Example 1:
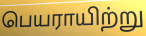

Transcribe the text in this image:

பெயராயிற்று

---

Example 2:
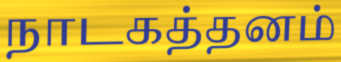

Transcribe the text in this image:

நாடகத்தனம்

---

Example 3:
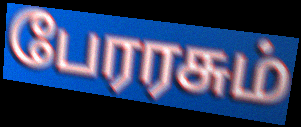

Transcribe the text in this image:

பேரரசும்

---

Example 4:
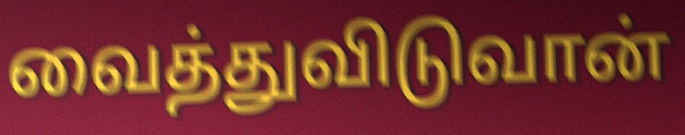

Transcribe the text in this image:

வைத்துவிடுவான்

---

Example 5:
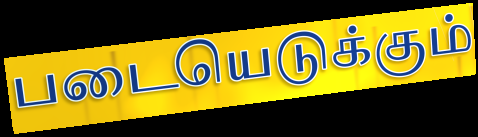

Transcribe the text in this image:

படையெடுக்கும்